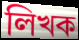
লিখক